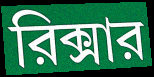
রিক্সার